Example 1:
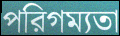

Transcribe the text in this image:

পরিগম্যতা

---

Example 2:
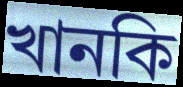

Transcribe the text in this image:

খানকি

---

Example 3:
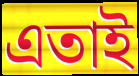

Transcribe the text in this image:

এতাই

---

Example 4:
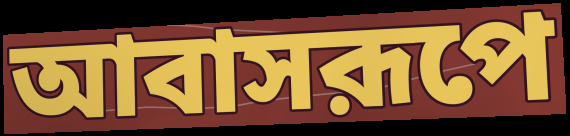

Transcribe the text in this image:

আবাসরূপে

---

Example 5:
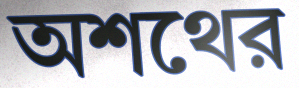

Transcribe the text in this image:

অশথের